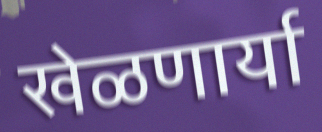
खेळणार्या